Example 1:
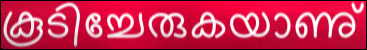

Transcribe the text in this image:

കൂടിച്ചേരുകയാണു്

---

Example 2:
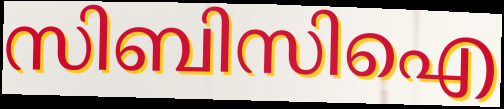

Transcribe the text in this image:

സിബിസിഐ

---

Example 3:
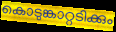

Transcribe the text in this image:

കൊടുങ്കാറ്റടിക്കും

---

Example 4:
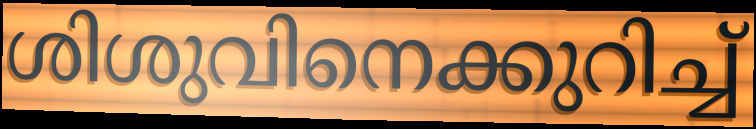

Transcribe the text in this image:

ശിശുവിനെക്കുറിച്ച്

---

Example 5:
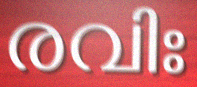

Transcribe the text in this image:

രവിഃ